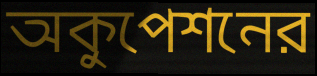
অকুপেশনের